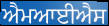
ਐਮਆਈਐਸ